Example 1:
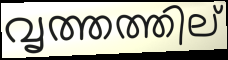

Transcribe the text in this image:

വൃത്തത്തില്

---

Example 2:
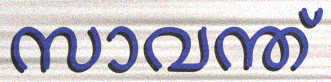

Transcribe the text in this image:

സാവന്ത്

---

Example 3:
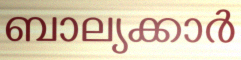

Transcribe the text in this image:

ബാല്യക്കാർ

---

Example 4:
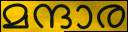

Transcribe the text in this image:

മന്ദാര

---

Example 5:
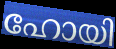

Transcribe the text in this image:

ഹോയി